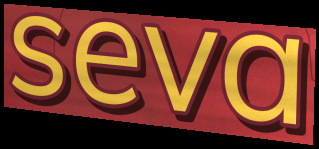
seva